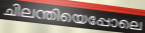
ചിലന്തിയെപ്പോലെ